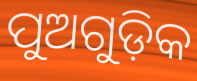
ପୁଅଗୁଡ଼ିକ